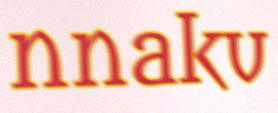
nnaku